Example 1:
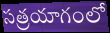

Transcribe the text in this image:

సత్రయాగంలో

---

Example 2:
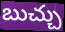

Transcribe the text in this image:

బుచ్చు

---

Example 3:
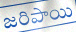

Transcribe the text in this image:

జరిపాయి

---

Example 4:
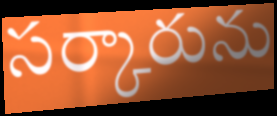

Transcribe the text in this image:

సర్కారును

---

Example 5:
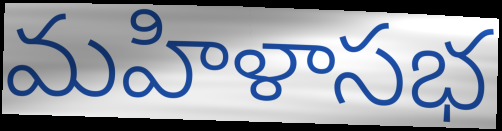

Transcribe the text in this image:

మహిళాసభ